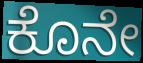
ಕೊನೇ